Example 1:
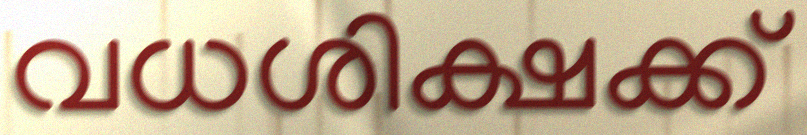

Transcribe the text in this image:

വധശിക്ഷക്ക്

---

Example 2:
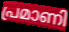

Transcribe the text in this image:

പ്രമാണി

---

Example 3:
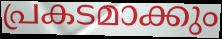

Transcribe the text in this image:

പ്രകടമാക്കും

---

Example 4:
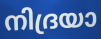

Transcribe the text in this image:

നിദ്രയാ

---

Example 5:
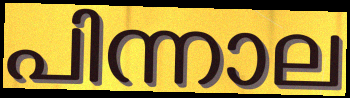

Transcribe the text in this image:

പിന്നാല